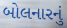
બોલનારનું